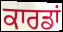
ਕਾਰਡਾਂ